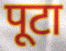
पूटा